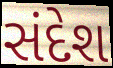
સંદેશ